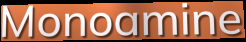
Monoamine